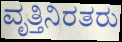
ವೃತ್ತಿನಿರತರು